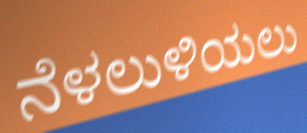
ನೆಳಲುಳಿಯಲು